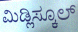
ಮಿಡ್ಲಿಸ್ಕೂಲ್